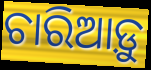
ଚାରିଆଡ଼ୁ